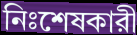
নিঃশেষকারী